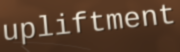
upliftment